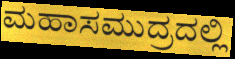
ಮಹಾಸಮುದ್ರದಲ್ಲಿ